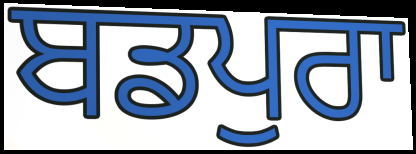
ਬਡਪੁਰਾ